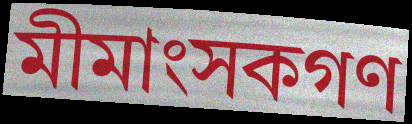
মীমাংসকগণ